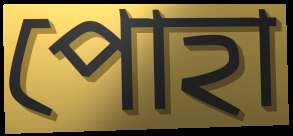
পোহা